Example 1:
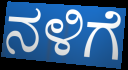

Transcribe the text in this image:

ನಳಿಗೆ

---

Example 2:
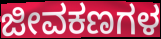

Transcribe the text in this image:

ಜೀವಕಣಗಳ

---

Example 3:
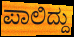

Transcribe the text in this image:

ಪಾಲಿದ್ದು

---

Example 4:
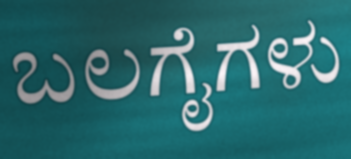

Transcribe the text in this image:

ಬಲಗೈಗಳು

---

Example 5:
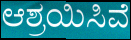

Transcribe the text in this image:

ಆಶ್ರಯಿಸಿವೆ